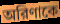
অরিণাকে